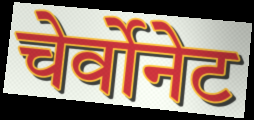
चेर्वोनेट